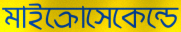
মাইক্রোসেকেন্ডে